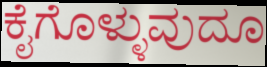
ಕೈಗೊಳ್ಳುವುದೂ